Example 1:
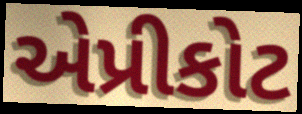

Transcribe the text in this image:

એપ્રીકોટ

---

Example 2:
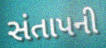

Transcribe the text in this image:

સંતાપની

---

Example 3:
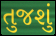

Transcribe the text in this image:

તુજશું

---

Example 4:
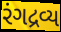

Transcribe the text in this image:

રંગદ્રવ્ય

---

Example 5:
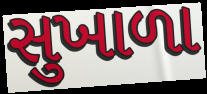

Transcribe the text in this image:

સુખાળા